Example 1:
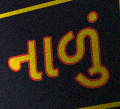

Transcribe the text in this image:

નાળું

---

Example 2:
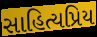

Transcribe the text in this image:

સાહિત્યપ્રિય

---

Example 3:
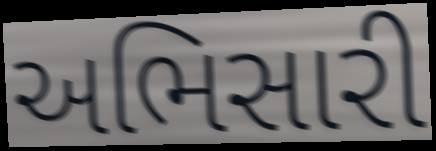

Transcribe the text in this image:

અભિસારી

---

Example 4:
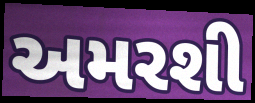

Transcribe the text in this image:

અમરશી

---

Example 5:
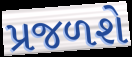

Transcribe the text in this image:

પ્રજળશે